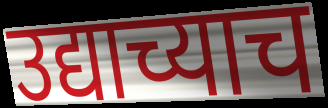
उद्याच्याच